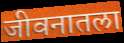
जीवनातला